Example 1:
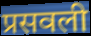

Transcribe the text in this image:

प्रसवली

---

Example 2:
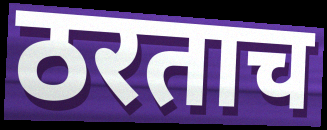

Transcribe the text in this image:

ठरताच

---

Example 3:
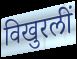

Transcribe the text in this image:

विखुरलीं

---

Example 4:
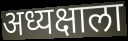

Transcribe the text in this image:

अध्यक्षाला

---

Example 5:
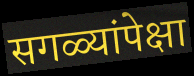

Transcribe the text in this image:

सगळ्यांपेक्षा